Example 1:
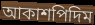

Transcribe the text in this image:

আকাশপিদিম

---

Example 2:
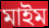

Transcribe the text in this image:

মাইম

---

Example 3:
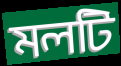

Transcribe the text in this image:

মলটি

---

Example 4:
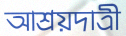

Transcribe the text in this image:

আশ্রয়দাত্রী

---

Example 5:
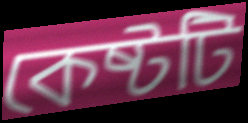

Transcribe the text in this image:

কেষ্টটি